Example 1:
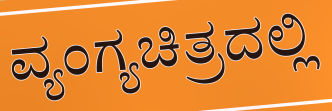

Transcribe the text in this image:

ವ್ಯಂಗ್ಯಚಿತ್ರದಲ್ಲಿ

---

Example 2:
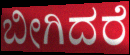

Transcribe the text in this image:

ಬೀಗಿದರೆ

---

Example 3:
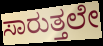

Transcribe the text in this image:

ಸಾರುತ್ತಲೇ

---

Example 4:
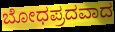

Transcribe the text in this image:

ಬೋಧಪ್ರದವಾದ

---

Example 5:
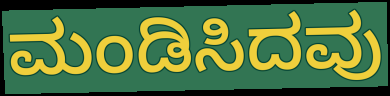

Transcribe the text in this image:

ಮಂಡಿಸಿದವು